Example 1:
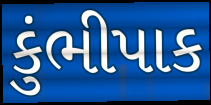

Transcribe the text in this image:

કુંભીપાક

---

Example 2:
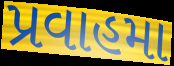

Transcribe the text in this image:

પ્રવાહમા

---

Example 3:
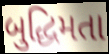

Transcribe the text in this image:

બુદ્ધિમતા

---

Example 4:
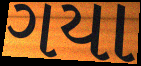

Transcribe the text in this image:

ગયા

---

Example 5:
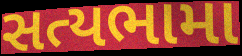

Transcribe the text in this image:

સત્યભામા